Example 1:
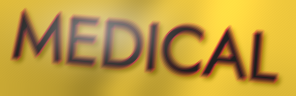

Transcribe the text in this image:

MEDICAL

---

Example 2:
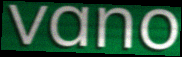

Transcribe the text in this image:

vano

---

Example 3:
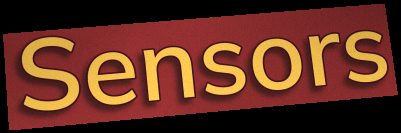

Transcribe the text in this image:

Sensors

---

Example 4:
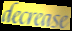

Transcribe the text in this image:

decrease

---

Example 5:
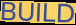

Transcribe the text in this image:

BUILD